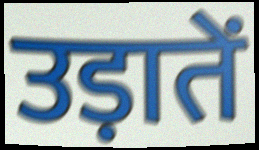
उड़ातें